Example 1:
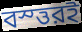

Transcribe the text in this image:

বস্ত্তরই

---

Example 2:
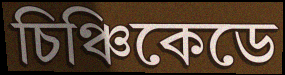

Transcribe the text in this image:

চিঞ্চিকেডে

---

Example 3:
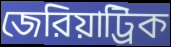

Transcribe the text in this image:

জেরিয়াট্রিক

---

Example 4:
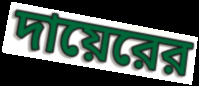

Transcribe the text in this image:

দায়েরের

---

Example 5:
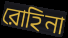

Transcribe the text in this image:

রোহিনা